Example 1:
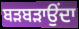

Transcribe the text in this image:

ਬੜਬੜਾਉਂਦਾ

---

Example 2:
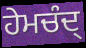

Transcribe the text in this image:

ਹੇਮਚੰਦ੍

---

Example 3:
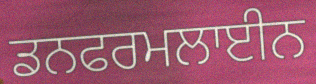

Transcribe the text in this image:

ਡਨਫਰਮਲਾਈਨ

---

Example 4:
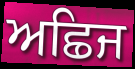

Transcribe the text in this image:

ਅਛਿਜ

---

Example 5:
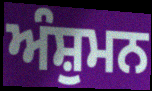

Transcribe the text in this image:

ਅੰਸ਼ੁਮਨ